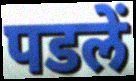
पडलें